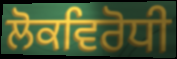
ਲੋਕਵਿਰੋਧੀ